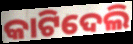
କାଟିଦେଲି